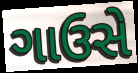
ગાઉસે